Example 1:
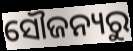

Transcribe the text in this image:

ସୌଜନ୍ୟରୁ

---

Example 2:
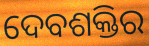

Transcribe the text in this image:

ଦେବଶକ୍ତିର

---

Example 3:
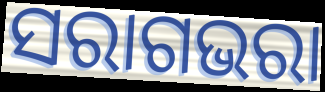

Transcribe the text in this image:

ସରାଗଭରା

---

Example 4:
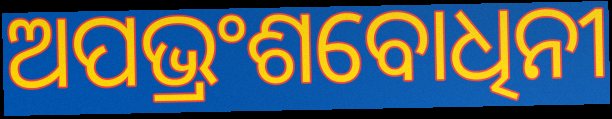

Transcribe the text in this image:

ଅପଭ୍ରଂଶବୋଧିନୀ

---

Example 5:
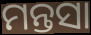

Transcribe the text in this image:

ମନ୍ତସା